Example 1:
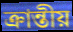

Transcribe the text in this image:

ক্রান্তীয়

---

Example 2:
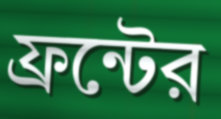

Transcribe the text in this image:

ফ্রন্টের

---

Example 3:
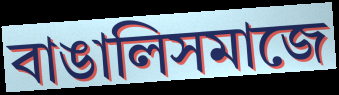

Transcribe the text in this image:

বাঙালিসমাজে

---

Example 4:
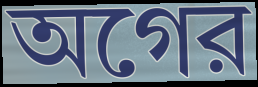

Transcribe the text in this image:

অগের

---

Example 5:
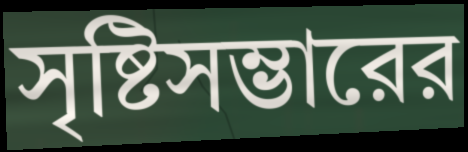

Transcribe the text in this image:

সৃষ্টিসম্ভারের